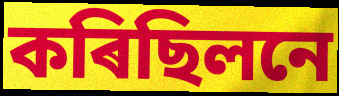
কৰিছিলনে